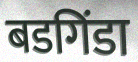
बडगिंडा